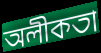
অলীকতা